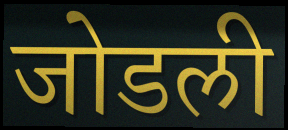
जोडली